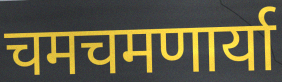
चमचमणार्या